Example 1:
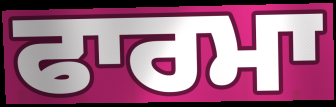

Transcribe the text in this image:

ਫਾਰਮਾ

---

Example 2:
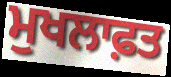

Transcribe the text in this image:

ਮੁਖਲਾਫ਼ਤ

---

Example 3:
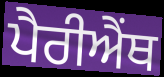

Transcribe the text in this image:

ਪੈਰੀਐਂਥ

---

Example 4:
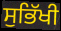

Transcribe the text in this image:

ਸੁਭਿੱਖੀ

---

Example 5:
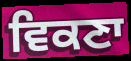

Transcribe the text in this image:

ਵਿਕਣਾ